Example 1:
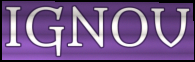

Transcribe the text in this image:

IGNOU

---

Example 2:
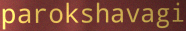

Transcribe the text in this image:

parokshavagi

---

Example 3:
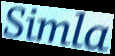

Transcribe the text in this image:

Simla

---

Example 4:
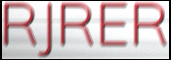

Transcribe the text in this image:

RJRER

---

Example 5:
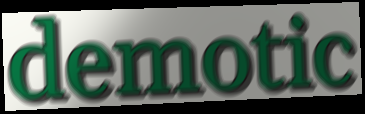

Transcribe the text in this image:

demotic